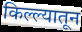
किल्ल्यातून